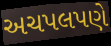
અચપલપણે